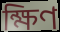
ক্ষিণ